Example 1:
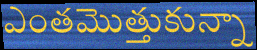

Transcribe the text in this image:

ఎంతమొత్తుకున్నా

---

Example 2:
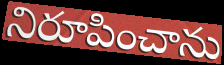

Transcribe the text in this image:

నిరూపించాను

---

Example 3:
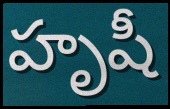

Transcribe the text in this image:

హృషీ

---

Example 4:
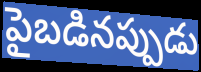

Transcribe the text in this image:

పైబడినప్పుడు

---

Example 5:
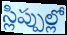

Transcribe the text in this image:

స్లిప్పుల్లో